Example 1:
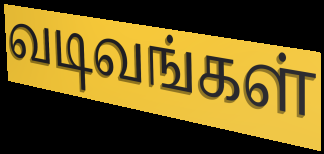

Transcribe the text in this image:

வடிவங்கள்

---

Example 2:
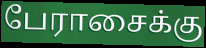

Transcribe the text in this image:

பேராசைக்கு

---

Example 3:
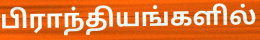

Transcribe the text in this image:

பிராந்தியங்களில்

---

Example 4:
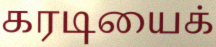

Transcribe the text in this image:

கரடியைக்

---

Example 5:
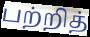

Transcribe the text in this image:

பற்றித்